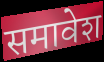
समावेश